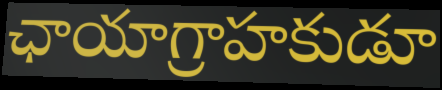
ఛాయాగ్రాహకుడూ